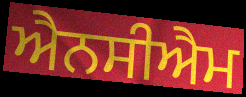
ਐਨਸੀਐਮ